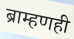
ब्राम्हणही